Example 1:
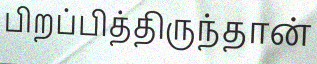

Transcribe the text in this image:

பிறப்பித்திருந்தான்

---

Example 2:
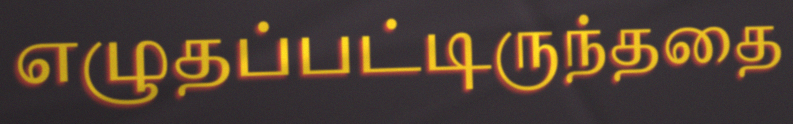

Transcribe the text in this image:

எழுதப்பட்டிருந்ததை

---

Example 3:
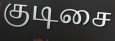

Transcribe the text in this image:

குடிசை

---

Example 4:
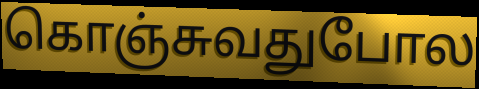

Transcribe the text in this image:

கொஞ்சுவதுபோல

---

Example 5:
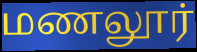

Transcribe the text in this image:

மணலூர்